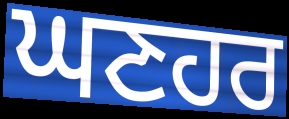
ਘਣਹਰ